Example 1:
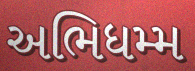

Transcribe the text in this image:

અભિધમ્મ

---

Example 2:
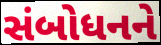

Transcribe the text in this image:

સંબોધનને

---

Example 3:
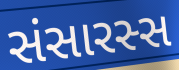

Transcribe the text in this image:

સંસારસ્સ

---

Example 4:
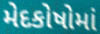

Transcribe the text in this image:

મેદકોષોમાં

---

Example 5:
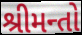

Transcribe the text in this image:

શ્રીમન્તો